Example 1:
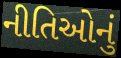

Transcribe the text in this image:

નીતિઓનું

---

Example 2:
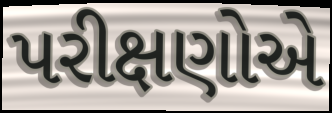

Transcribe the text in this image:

પરીક્ષણોએ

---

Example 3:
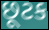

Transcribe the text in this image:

છૂટક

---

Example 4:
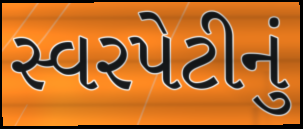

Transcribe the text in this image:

સ્વરપેટીનું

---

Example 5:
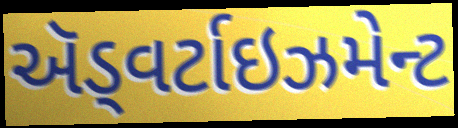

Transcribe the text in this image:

ઍડ્વર્ટાઇઝમેન્ટ